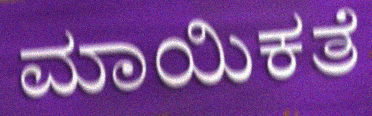
ಮಾಯಿಕತೆ